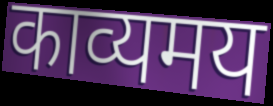
काव्यमय